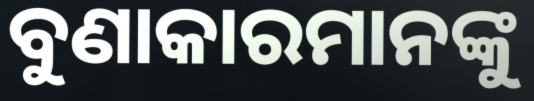
ବୁଣାକାରମାନଙ୍କୁ